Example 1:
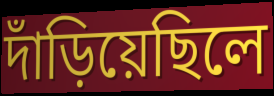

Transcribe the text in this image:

দাঁড়িয়েছিলে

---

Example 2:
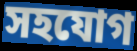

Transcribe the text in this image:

সহযোগ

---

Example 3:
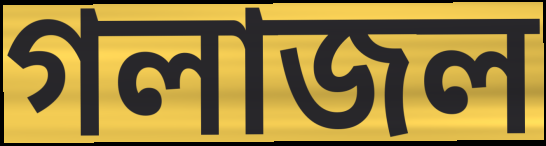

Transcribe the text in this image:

গলাজল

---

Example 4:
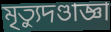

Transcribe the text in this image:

মৃত্যুদণ্ডাজ্ঞা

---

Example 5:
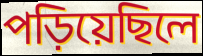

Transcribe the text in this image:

পড়িয়েছিলে